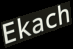
Ekach